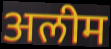
अलीम